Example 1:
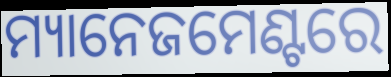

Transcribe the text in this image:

ମ୍ୟାନେଜମେଣ୍ଟରେ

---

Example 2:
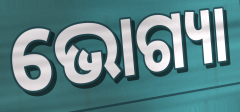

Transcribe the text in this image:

ଭୋଗ୍ୟା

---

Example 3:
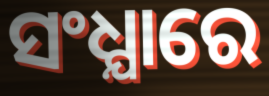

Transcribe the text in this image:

ସଂଧ୍ଯାରେ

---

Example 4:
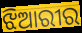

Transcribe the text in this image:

ଝିଆରୀର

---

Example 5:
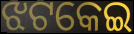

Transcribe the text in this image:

ଝଟକେଇ